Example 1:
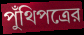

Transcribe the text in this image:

পুঁথিপত্রের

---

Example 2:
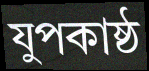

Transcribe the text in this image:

যুপকাষ্ঠ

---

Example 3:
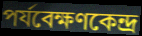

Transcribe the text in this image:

পর্যবেক্ষণকেন্দ্র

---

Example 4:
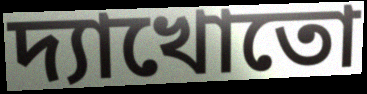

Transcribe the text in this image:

দ্যাখোতো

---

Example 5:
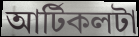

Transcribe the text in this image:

আর্টিকলটা